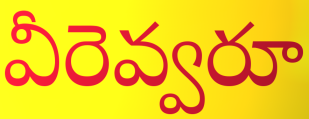
వీరెవ్వరూ